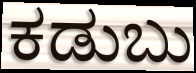
ಕಡುಬು